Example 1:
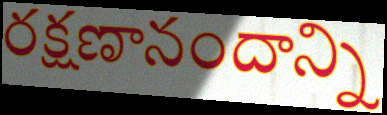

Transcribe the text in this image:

రక్షణానందాన్ని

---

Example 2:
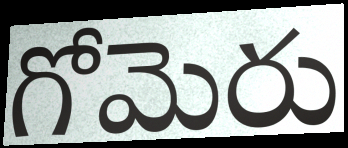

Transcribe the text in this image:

గోమెరు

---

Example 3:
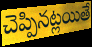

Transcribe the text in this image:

చెప్పినట్లయితే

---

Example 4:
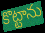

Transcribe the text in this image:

కొట్టాను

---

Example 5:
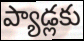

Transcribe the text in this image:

ప్యాడ్లకు